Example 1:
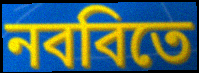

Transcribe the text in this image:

নববিতে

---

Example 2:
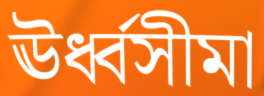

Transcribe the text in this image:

ঊর্ধ্বসীমা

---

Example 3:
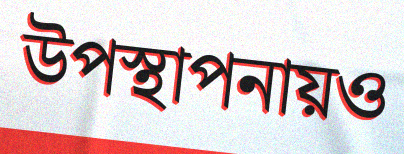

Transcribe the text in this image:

উপস্থাপনায়ও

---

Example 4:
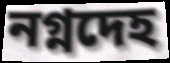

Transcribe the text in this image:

নগ্নদেহ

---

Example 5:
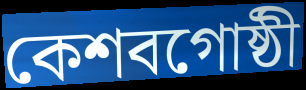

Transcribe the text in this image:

কেশবগোষ্ঠী